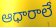
ఆధారాలే